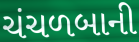
ચંચળબાની